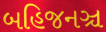
બહિજનઞ્ચ